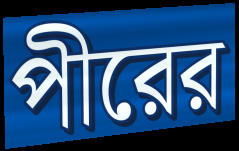
পীরের